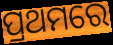
ପ୍ରଥମରେ